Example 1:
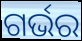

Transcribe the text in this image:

ଗର୍ଭର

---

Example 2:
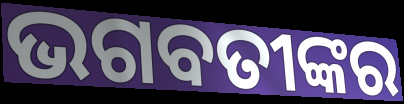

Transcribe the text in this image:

ଭଗବତୀଙ୍କର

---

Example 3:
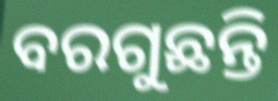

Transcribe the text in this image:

ବରଗୁଛନ୍ତି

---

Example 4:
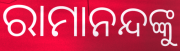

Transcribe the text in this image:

ରାମାନନ୍ଦଙ୍କୁ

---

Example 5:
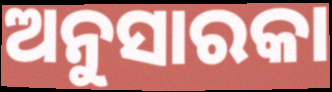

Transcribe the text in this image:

ଅନୁସାରକା